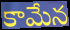
కామేన